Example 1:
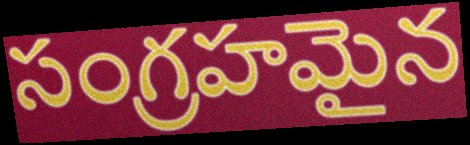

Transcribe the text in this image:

సంగ్రహమైన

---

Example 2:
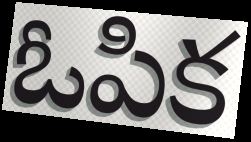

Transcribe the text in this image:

ఓపిక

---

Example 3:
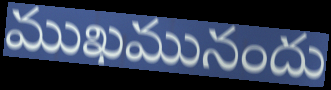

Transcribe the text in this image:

ముఖమునందు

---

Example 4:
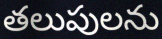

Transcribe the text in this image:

తలుపులను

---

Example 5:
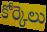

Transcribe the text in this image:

కోర్కెలు